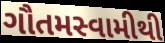
ગૌતમસ્વામીથી